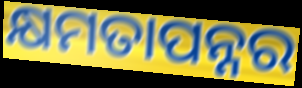
କ୍ଷମତାପନ୍ନର